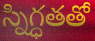
స్నిగ్ధతతో